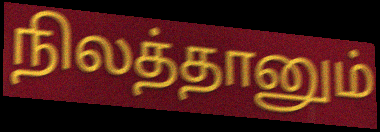
நிலத்தானும்